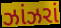
ઝાંઝરાં